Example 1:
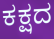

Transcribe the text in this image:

ಕಕ್ಷದ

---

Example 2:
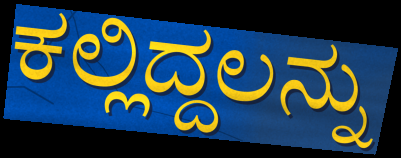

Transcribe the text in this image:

ಕಲ್ಲಿದ್ದಲನ್ನು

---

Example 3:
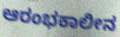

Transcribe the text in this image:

ಆರಂಭಕಾಲೀನ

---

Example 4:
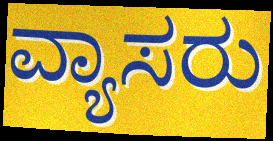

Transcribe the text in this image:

ವ್ಯಾಸರು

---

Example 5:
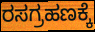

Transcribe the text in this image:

ರಸಗ್ರಹಣಕ್ಕೆ